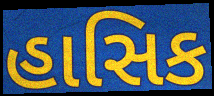
હાસિક